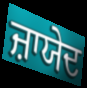
ਜ਼ਾਯੇਦ